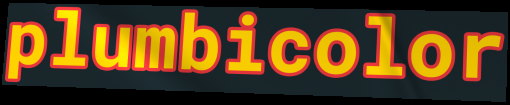
plumbicolor